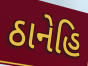
ઠાનેહિ